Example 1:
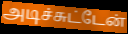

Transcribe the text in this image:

அடிச்சுட்டேன்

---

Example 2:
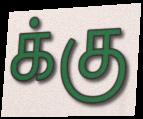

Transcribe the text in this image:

க்கு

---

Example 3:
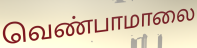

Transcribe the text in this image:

வெண்பாமாலை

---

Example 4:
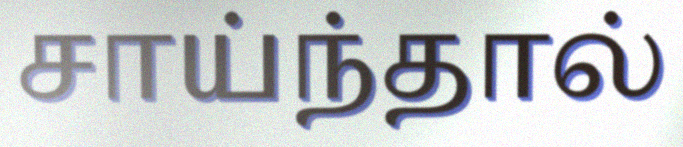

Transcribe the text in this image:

சாய்ந்தால்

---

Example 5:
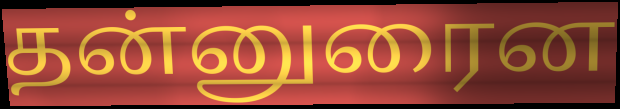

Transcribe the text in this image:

தன்னுரைன